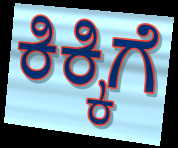
ಕಿಕ್ಕಿಗೆ